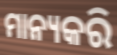
ମାନ୍ୟକରି